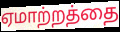
ஏமாற்றத்தை